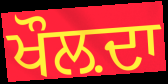
ਖੌਲ਼ਦਾ